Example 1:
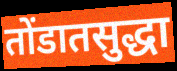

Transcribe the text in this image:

तोंडातसुद्धा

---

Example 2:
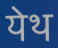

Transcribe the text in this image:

येथ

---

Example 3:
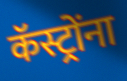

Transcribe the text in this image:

कॅस्ट्रोंना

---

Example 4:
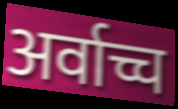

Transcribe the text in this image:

अर्वाच्च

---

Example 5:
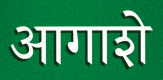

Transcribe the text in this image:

आगाशे